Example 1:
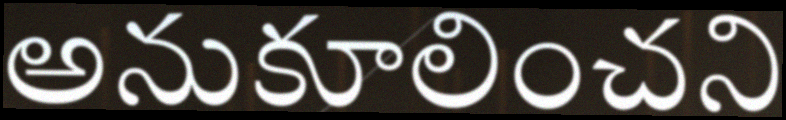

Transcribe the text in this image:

అనుకూలించని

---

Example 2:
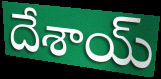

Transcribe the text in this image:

దేశాయ్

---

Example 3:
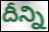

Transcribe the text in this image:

దీన్ని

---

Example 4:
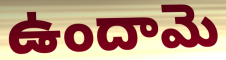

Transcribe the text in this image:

ఉందామె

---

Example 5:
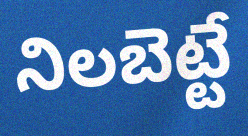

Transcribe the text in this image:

నిలబెట్టే